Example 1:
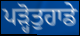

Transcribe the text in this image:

ਪੜ੍ਹੋਤੁਹਾਡੇ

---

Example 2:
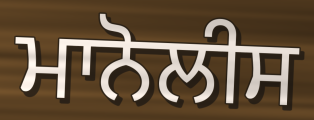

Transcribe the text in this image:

ਮਾਨੋਲੀਸ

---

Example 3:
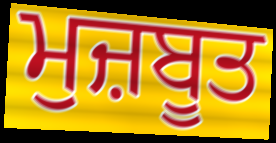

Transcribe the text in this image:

ਮੁਜ਼ਬੂਤ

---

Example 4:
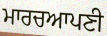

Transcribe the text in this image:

ਮਾਰਚਆਪਣੀ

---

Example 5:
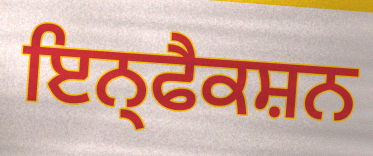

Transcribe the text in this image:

ਇਨ੍ਫੈਕਸ਼ਨ